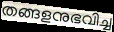
തങ്ങളനുഭവിച്ച